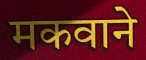
मकवाने